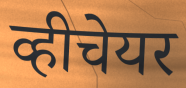
व्हीचेयर